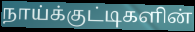
நாய்க்குட்டிகளின்